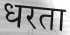
धरता